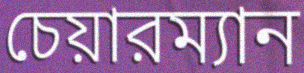
চেয়ারম্যান